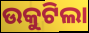
ଉକୁଟିଲା